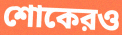
শোকেরও